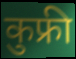
कुफ्री